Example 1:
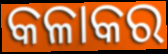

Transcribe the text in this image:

କଳାକର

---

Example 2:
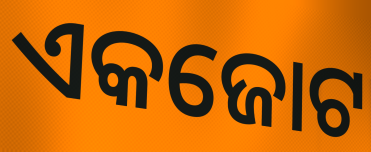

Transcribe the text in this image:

ଏକଜୋଟ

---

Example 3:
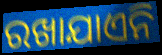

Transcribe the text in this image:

ରଖାଯାଏନି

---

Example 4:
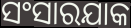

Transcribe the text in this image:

ସଂସାରଯାକ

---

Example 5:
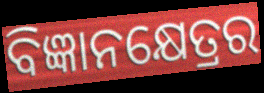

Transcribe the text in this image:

ବିଜ୍ଞାନକ୍ଷେତ୍ରର